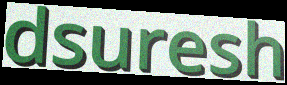
dsuresh